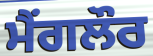
ਮੈਂਗਲੌਰ